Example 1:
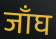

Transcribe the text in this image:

जाँघ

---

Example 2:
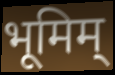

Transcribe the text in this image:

भूमिम्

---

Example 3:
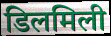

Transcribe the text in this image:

डिलमिली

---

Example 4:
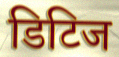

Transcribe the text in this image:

डिटिज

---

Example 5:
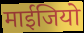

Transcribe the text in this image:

माईजियो